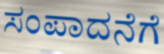
ಸಂಪಾದನೆಗೆ